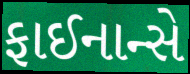
ફાઈનાન્સે